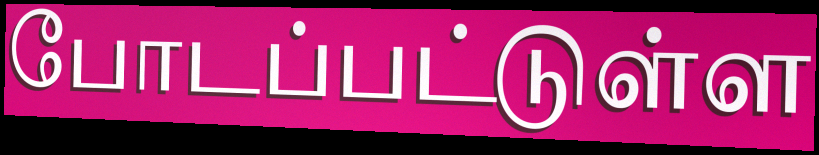
போடப்பட்டுள்ள